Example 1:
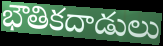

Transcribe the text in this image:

భౌతికదాడులు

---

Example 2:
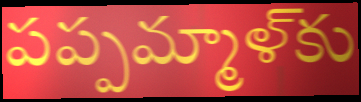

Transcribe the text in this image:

పప్పమ్మాళ్‌కు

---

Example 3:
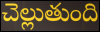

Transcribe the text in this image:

చెల్లుతుంది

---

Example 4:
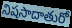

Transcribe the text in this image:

నిషసాదాతురో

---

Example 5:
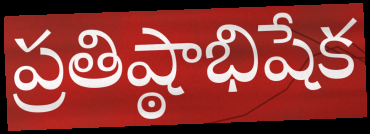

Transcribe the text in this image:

ప్రతిష్ఠాభిషేక